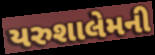
યરુશાલેમની